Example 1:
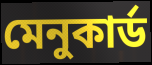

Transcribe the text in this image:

মেনুকার্ড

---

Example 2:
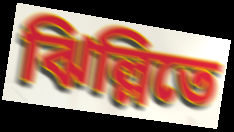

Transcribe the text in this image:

ঝিল্লিতে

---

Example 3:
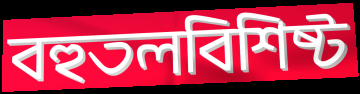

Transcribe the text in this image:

বহুতলবিশিষ্ট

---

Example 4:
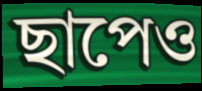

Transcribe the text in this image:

ছাপেও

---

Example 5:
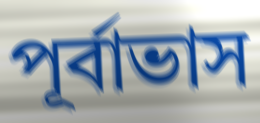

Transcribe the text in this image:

পূর্বাভাস